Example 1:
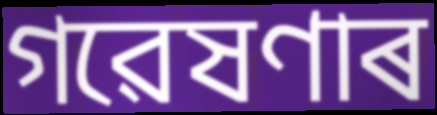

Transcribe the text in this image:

গৱেষণাৰ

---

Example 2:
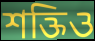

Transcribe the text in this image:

শক্তিও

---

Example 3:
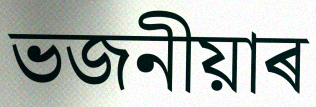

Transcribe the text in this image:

ভজনীয়াৰ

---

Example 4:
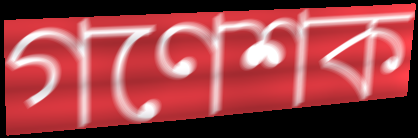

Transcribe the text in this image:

গণেশক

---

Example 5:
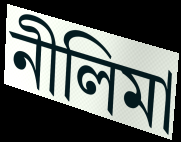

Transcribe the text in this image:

নীলিমা